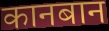
कानबान